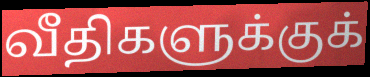
வீதிகளுக்குக்